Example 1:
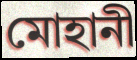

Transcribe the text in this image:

মোহানী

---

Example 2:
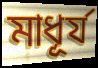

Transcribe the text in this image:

মাধূর্য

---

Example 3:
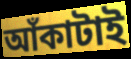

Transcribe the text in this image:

আঁকাটাই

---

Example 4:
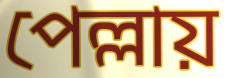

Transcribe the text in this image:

পেল্লায়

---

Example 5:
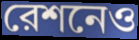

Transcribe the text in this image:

রেশনেও